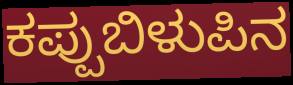
ಕಪ್ಪುಬಿಳುಪಿನ